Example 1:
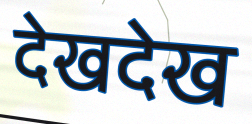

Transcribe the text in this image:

देखदेख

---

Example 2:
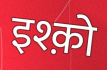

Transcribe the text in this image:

इश्क़ो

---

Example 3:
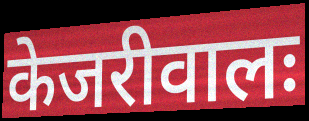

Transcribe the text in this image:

केजरीवालः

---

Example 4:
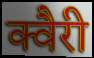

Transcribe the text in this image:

क्वैरी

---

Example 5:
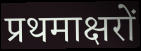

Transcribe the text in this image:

प्रथमाक्षरों